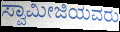
ಸ್ವಾಮೀಜಿಯವರು